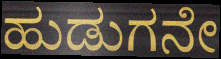
ಹುಡುಗನೇ